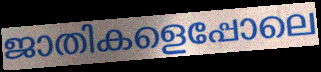
ജാതികളെപ്പോലെ